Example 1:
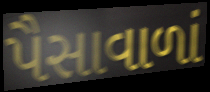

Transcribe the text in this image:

પૈસાવાળાં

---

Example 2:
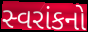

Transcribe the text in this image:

સ્વરાંકનો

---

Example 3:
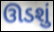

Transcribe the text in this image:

ઊડશું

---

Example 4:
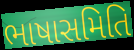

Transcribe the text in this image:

ભાષાસમિતિ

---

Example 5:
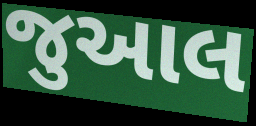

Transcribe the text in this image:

જુઆલ